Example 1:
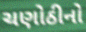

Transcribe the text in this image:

ચણોઠીનો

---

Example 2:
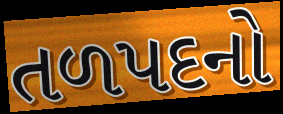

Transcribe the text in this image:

તળપદનો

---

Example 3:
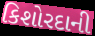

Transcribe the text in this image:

કિશોરદાની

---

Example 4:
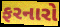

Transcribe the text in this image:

ફરનારો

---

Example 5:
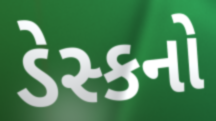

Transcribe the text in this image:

ડેસ્કનો